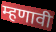
म्हणावी